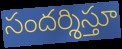
సందర్శిస్తూ